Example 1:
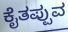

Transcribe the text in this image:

ಕೈತಪ್ಪುವ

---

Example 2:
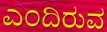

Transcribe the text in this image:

ಎಂದಿರುವ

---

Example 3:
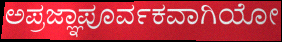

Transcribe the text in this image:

ಅಪ್ರಜ್ಞಾಪೂರ್ವಕವಾಗಿಯೋ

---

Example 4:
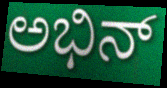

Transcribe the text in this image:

ಅಭಿನ್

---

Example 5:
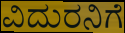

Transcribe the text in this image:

ವಿದುರನಿಗೆ